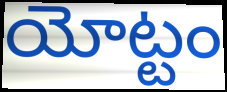
యోట్టం